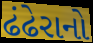
ઢંઢેરાનો